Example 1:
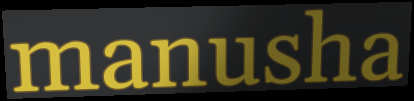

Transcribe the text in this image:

manusha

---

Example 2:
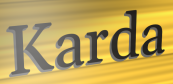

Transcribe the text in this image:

Karda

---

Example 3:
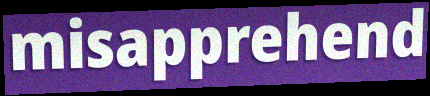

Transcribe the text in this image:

misapprehend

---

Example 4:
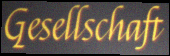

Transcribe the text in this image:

Gesellschaft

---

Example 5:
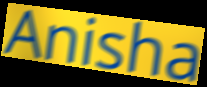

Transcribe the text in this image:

Anisha